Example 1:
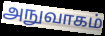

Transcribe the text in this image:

அநுவாகம்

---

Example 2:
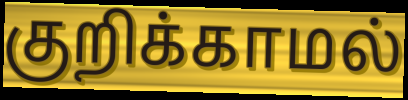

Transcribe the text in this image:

குறிக்காமல்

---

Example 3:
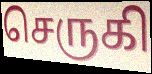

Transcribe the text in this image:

செருகி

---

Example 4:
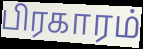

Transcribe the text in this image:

பிரகாரம்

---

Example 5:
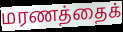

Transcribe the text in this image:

மரணத்தைக்